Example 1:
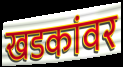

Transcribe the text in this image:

खडकांवर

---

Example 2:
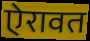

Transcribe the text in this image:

ऐरावत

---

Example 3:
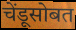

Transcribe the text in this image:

चेंडूसोबत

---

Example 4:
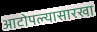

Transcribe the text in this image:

आटोपल्यासारखा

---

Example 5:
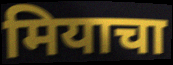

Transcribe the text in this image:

मियाचा